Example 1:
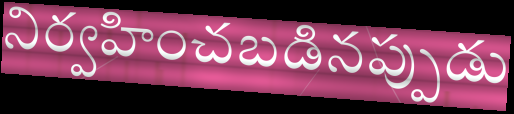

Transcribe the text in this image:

నిర్వహించబడినప్పుడు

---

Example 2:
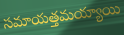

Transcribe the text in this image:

సమాయత్తమయ్యాయి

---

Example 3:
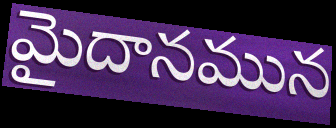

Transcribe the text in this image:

మైదానమున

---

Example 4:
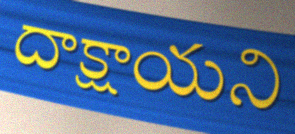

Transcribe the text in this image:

దాక్షాయని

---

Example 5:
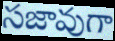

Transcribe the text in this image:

సజావుగా